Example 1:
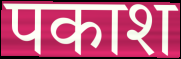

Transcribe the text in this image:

पकाश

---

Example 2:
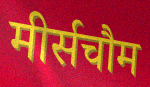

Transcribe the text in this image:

मीर्सचौम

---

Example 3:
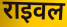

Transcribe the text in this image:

राइवल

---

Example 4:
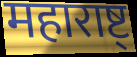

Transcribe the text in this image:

महाराष्ट्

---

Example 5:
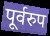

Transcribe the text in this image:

पूर्वरुप